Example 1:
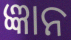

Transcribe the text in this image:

ଜ୍ଞାନ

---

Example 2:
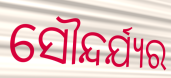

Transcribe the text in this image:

ସୌନ୍ଦର୍ଯ୍ୟର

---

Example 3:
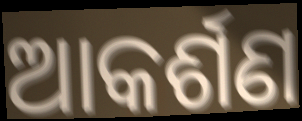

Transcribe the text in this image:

ଆକର୍ଶଣ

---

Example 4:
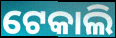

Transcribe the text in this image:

ଟେକାଲି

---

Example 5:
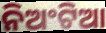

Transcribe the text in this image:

ନିଅଂଟିଆ